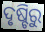
ଦୃଷ୍ଚିରୁ